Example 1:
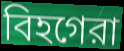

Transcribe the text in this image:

বিহগেরা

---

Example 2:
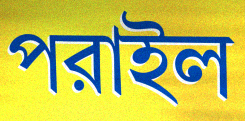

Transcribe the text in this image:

পরাইল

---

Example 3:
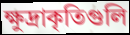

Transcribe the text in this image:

ক্ষুদ্রাকৃতিগুলি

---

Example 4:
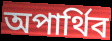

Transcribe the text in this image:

অপার্থিব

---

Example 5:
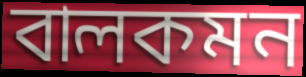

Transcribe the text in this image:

বালকমন